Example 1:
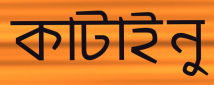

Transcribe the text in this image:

কাটাইনু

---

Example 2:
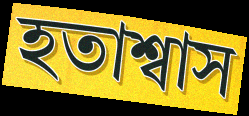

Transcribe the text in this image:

হতাশ্বাস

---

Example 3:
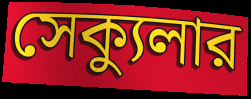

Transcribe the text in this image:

সেক্যুলার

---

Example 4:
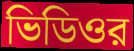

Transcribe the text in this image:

ভিডিওর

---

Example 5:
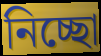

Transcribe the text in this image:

নিচ্ছো